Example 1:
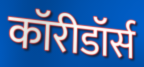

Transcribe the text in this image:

कॉरीडॉर्स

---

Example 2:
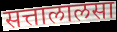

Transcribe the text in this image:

सत्तालालसा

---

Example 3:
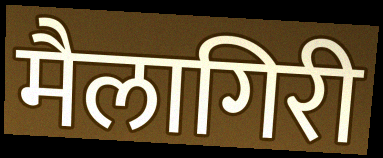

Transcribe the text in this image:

मैलागिरी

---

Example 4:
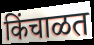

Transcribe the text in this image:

किंचाळत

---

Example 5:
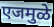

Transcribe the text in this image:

एजमुळे